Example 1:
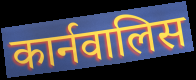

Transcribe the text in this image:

कार्नवालिस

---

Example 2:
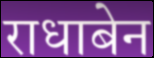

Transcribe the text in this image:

राधाबेन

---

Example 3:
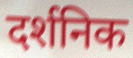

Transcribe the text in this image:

दर्शनिक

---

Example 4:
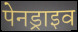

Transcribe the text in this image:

पेनड्राइव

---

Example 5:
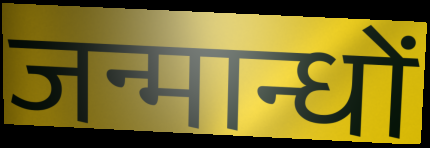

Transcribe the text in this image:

जन्मान्धों